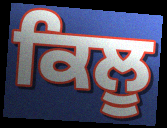
ਕਿਲੂ